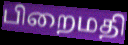
பிறைமதி